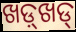
ଖଡ଼୍‌ଖଡ୍